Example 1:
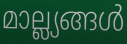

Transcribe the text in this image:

മാല്ല്യങ്ങൾ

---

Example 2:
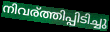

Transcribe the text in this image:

നിവര്ത്തിപ്പിടിച്ചു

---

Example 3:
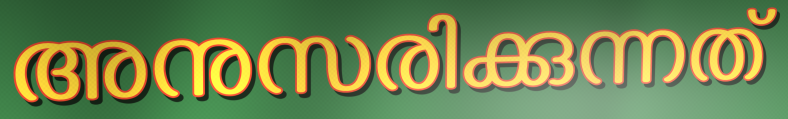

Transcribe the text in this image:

അനുസരിക്കുന്നത്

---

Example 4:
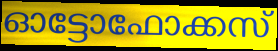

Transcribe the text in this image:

ഓട്ടോഫോക്കസ്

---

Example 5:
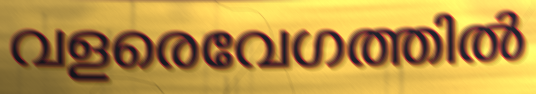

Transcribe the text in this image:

വളരെവേഗത്തിൽ